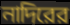
নাদিরের